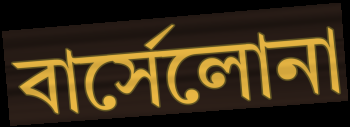
বার্সেলোনা